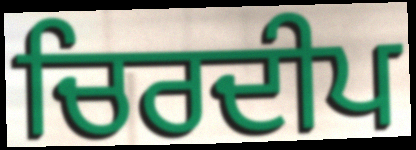
ਚਿਰਦੀਪ